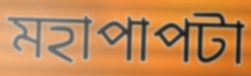
মহাপাপটা